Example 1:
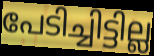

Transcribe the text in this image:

പേടിച്ചിട്ടില്ല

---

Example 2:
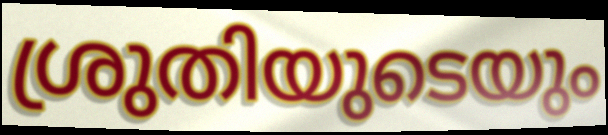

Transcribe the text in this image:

ശ്രുതിയുടെയും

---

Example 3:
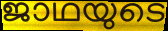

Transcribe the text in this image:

ജാഥയുടെ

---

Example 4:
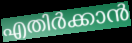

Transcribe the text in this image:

എതിർക്കാൻ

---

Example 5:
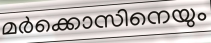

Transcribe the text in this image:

മർക്കൊസിനെയും